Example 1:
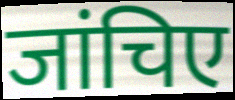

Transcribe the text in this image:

जांचिए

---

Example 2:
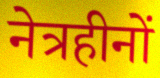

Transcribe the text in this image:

नेत्रहीनों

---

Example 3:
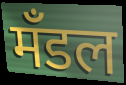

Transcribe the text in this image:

मँडल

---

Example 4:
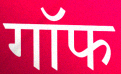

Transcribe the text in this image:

गॉफ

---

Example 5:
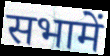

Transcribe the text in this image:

सभामें